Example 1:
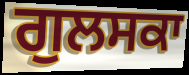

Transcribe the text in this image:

ਗੁਲਸਕਾ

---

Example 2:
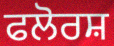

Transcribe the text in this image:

ਫਲੋਰਸ਼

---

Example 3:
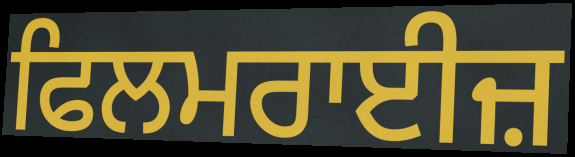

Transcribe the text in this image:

ਫਿਲਮਰਾਈਜ਼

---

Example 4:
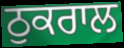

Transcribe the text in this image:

ਠੁਕਰਾਲ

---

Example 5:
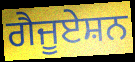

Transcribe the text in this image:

ਗੈਜੂਏਸ਼ਨ